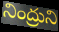
నింద్రుని